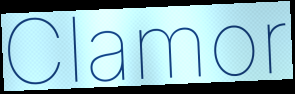
Clamor